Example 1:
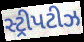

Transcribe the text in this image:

સ્ટ્રીપટીઝ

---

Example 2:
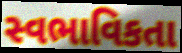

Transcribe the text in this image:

સ્વભાવિકતા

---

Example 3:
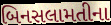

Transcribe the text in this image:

બિનસલામતીના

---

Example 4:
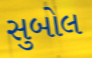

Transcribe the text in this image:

સુબોલ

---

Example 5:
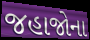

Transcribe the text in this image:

જહાજોના